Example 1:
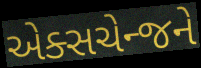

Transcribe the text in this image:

એક્સચેન્જને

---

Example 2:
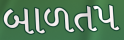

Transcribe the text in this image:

બાળતપ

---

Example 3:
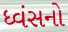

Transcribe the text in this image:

ધ્વંસનો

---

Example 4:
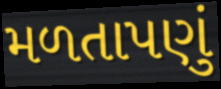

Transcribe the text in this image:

મળતાપણું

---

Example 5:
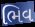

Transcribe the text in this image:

ભિવ